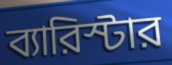
ব্যারিস্টার